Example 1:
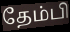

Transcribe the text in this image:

தேம்பி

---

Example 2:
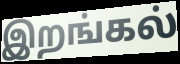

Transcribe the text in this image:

இறங்கல்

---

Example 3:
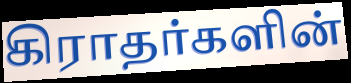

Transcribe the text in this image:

கிராதர்களின்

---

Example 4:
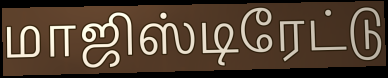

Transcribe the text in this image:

மாஜிஸ்டிரேட்டு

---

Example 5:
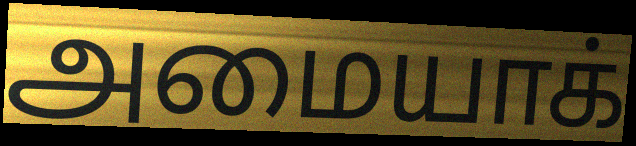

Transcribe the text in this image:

அமையாக்